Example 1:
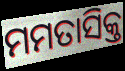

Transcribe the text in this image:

ମମତାସିକ୍ତ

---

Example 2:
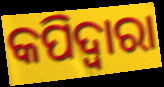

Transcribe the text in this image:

କପିଦ୍ୱାରା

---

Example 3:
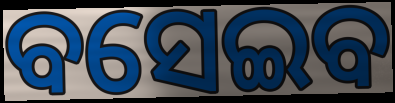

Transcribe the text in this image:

ବସେଇବ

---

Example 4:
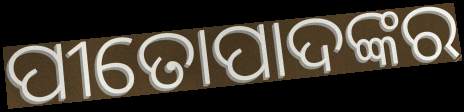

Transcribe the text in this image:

ପୀତୋପାଦଙ୍କର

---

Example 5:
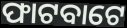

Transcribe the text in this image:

ଫାଟବାଟେ